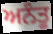
ਅਨੰਤੂ